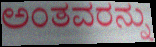
ಅಂತವರನ್ನು